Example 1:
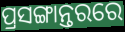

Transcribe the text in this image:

ପ୍ରସଙ୍ଗାନ୍ତରରେ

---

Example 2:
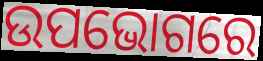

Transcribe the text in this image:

ଉପଭୋଗରେ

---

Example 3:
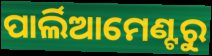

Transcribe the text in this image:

ପାର୍ଲିଆମେଣ୍ଟରୁ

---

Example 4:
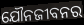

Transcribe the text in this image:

ଯୌନଜୀବନର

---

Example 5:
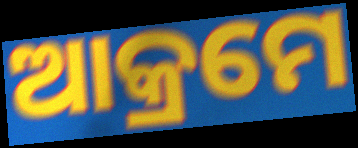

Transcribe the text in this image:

ଆକ୍ରମେ